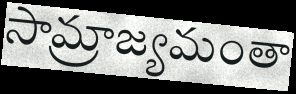
సామ్రాజ్యమంతా